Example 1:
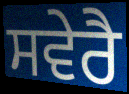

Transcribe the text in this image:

ਸਵੇਰੈ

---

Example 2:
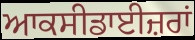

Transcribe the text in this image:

ਆਕਸੀਡਾਈਜ਼ਰਾਂ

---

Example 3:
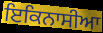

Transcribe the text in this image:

ਇਕਿਨਾਸੀਆ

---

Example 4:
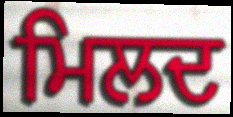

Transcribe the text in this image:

ਮਿਲਦ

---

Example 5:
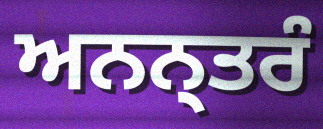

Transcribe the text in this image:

ਅਨਨ੍ਤਰੰ